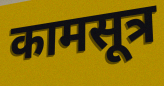
कामसूत्र